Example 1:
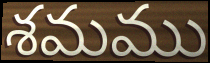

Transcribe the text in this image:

శమము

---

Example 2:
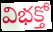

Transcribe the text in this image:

విభక్తో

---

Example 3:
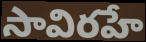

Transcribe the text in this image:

సావిరహే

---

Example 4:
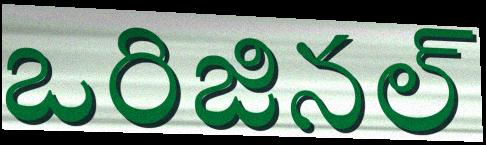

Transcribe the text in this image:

ఒరిజినల్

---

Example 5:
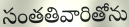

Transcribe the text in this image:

సంతతివారితోను